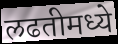
लढतीमध्ये